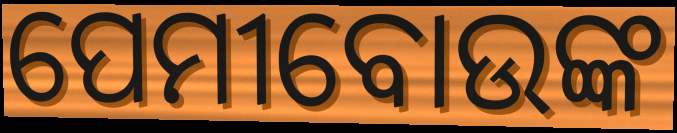
ପେମୀବୋଉଙ୍କ